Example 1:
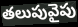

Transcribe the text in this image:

తలుపువైపు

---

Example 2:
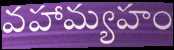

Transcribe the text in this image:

వహామ్యహం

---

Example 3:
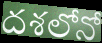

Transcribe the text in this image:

దశలోనో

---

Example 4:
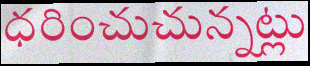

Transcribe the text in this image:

ధరించుచున్నట్లు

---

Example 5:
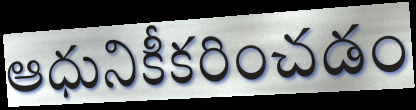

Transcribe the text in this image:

ఆధునికీకరించడం